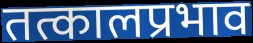
तत्कालप्रभाव